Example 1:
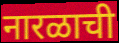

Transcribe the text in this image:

नारळाची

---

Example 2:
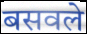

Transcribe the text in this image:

बसवले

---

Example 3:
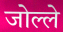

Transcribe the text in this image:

जोल्ले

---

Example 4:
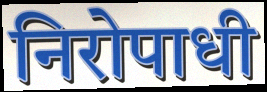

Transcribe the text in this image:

निरोपाधी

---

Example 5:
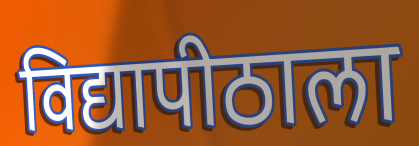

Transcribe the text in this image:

विद्यापीठाला